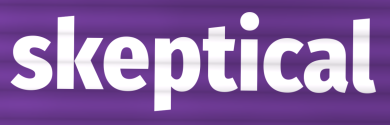
skeptical